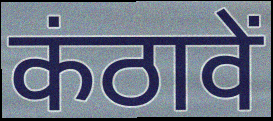
कंठावें